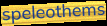
speleothems